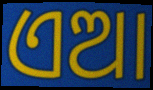
ଏଆ